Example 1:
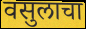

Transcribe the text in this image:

वसुलाचा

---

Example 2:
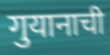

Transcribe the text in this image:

गुयानाची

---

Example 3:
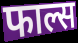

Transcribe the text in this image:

फाल्स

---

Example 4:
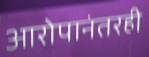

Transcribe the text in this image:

आरोपानंतरही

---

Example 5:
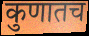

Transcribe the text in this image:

कुणातच